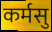
कर्मसु